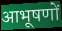
आभूषणों